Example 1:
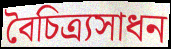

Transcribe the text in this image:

বৈচিত্র্যসাধন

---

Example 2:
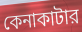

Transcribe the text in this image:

কেনাকাটার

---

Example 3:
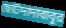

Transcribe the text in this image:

ছোটদাদাবাবুর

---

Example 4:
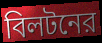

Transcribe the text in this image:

বিলটনের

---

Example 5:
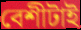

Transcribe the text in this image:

বেশীটাই